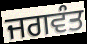
ਜਗਵੰਤ